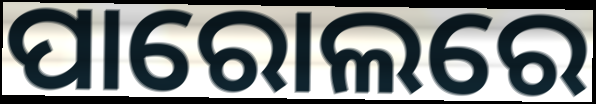
ପାରୋଲରେ